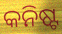
କନିଷ୍ଟ